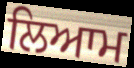
ਲਿਆਮ